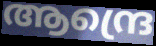
ആന്ദ്രെ